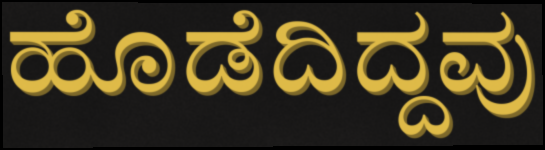
ಹೊಡೆದಿದ್ದವು